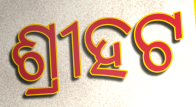
ଶ୍ରୀହଟ